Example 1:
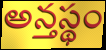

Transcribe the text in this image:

అన్తస్థం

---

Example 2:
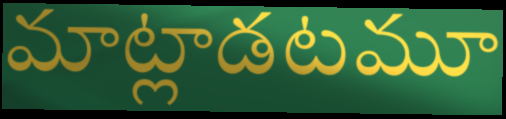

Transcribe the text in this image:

మాట్లాడటమూ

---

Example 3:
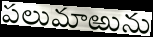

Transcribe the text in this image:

పలుమాఱును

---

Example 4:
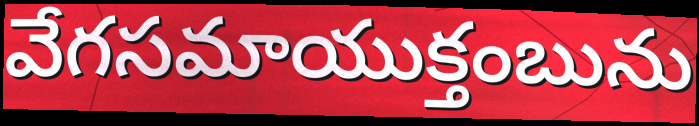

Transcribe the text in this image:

వేగసమాయుక్తంబును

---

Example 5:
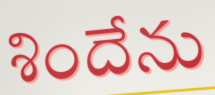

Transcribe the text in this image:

శిందేను